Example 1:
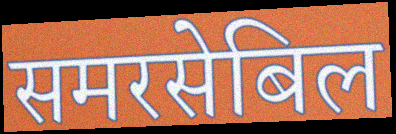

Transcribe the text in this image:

समरसेबिल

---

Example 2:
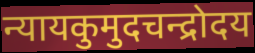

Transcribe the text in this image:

न्यायकुमुदचन्द्रोदय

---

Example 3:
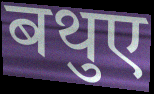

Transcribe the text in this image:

बथुए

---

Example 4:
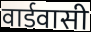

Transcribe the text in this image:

वार्डवासी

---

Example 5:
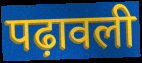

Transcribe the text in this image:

पढ़ावली